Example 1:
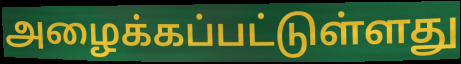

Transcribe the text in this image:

அழைக்கப்பட்டுள்ளது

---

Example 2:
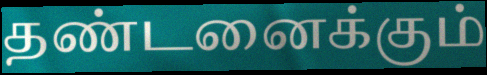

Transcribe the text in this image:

தண்டனைக்கும்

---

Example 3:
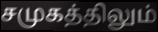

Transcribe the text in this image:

சமுகத்திலும்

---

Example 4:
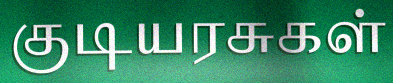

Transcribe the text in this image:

குடியரசுகள்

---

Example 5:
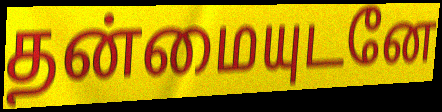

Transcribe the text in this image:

தன்மையுடனே